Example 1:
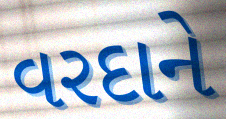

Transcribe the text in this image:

વરદાને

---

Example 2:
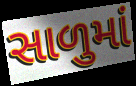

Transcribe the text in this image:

સાળુમાં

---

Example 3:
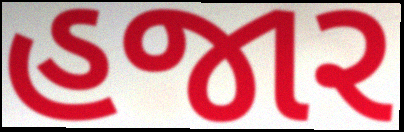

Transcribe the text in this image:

હજાર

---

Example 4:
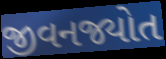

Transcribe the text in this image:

જીવનજ્યોત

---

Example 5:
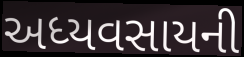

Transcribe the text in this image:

અધ્યવસાયની